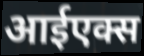
आईएक्स